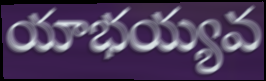
యాభయ్యవ